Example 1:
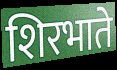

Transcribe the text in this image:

शिरभाते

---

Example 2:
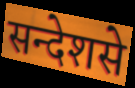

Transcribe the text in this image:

सन्देशसे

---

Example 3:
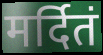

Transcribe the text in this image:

मर्दितं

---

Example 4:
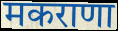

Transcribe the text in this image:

मकराणा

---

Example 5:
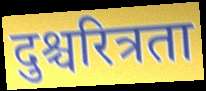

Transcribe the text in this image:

दुश्चरित्रता